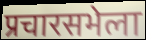
प्रचारसभेला